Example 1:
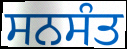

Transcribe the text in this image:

ਸਨਸੰਤ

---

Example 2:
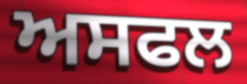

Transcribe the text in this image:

ਅਸਫਲ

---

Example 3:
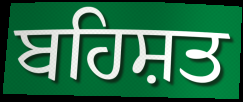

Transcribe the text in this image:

ਬਹਿਸ਼ਤ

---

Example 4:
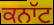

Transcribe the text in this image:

ਕਨਾੱਟ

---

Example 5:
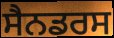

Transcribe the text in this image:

ਸੈਨਡਰਸ